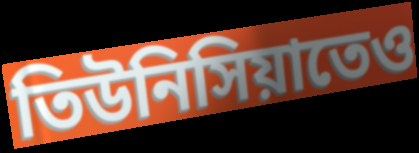
তিউনিসিয়াতেও